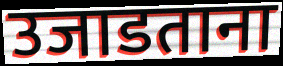
उजाडताना